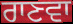
ਰਾਣਵਾ